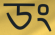
ডং